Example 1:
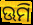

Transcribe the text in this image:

ଊମି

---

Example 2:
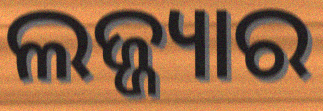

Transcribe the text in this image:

ଲଜ୍ଜ୍ୟାର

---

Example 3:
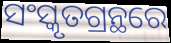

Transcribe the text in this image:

ସଂସ୍କୃତଗ୍ରନ୍ଥରେ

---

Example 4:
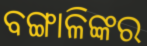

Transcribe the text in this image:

ବଙ୍ଗାଳିଙ୍କର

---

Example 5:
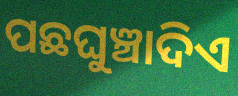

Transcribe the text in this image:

ପଛଘୁଞ୍ଚାଦିଏ